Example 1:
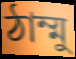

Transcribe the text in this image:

ঠাম্মু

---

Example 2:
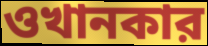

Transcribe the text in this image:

ওখানকার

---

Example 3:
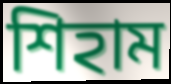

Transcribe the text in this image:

শিহাম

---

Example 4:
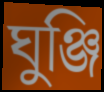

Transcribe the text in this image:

ঘুঞ্জি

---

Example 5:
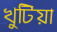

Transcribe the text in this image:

খুটিয়া